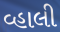
વ્હાલી